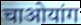
चाओयांग